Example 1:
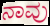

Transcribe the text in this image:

ನಾವು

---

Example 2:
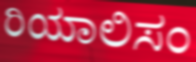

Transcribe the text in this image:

ರಿಯಾಲಿಸಂ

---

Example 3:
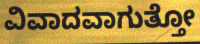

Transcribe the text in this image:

ವಿವಾದವಾಗುತ್ತೋ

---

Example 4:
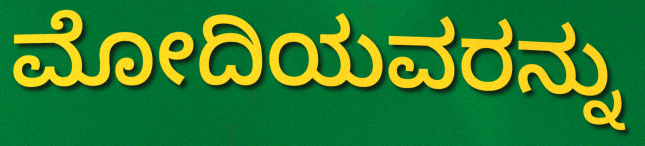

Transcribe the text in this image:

ಮೋದಿಯವರನ್ನು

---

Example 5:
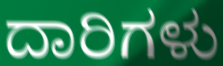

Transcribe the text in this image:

ದಾರಿಗಳು